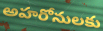
అహరోనులకు